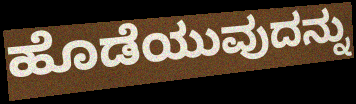
ಹೊಡೆಯುವುದನ್ನು